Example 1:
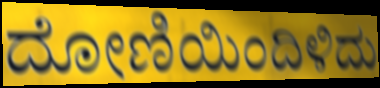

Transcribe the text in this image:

ದೋಣಿಯಿಂದಿಳಿದು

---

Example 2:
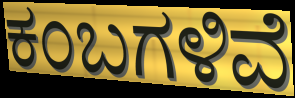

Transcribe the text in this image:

ಕಂಬಗಳಿವೆ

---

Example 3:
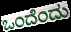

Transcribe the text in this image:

ಒಂದೆಂದು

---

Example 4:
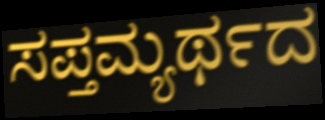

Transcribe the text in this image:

ಸಪ್ತಮ್ಯರ್ಥದ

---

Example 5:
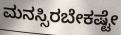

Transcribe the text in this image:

ಮನಸ್ಸಿರಬೇಕಷ್ಟೇ